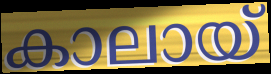
കാലായ്